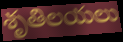
శృతిలయలు